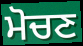
ਮੋਚਣ